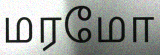
மரமோ